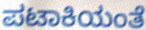
ಪಟಾಕಿಯಂತೆ